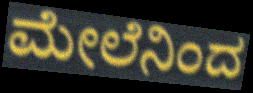
ಮೇಲೆನಿಂದ